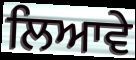
ਲਿਆਵੇ